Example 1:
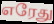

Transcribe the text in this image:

எரேது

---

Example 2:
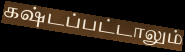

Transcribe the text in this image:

கஷ்டப்பட்டாலும்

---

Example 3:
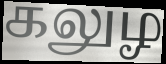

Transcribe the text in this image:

கலுழ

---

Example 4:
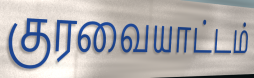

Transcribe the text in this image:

குரவையாட்டம்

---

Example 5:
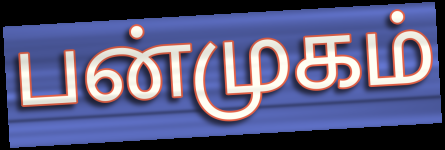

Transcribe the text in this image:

பன்முகம்